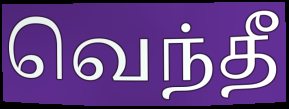
வெந்தீ